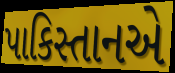
પાકિસ્તાનએ